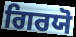
ਗਿਰਯੋ